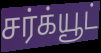
சர்க்யூட்